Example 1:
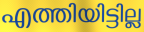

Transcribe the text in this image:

എത്തിയിട്ടില്ല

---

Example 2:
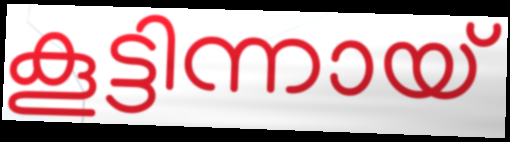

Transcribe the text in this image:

കൂട്ടിന്നായ്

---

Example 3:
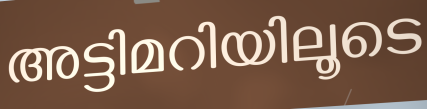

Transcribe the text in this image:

അട്ടിമറിയിലൂടെ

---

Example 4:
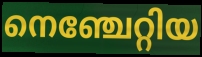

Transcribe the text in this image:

നെഞ്ചേറ്റിയ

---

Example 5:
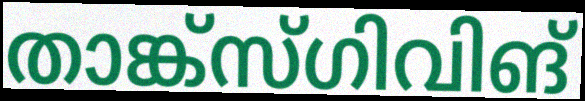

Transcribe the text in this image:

താങ്ക്സ്ഗിവിങ്